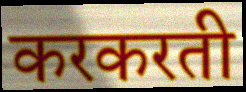
करकरती